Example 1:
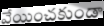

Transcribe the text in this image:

వేయించకుండా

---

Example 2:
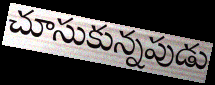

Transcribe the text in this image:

చూసుకున్నపుడు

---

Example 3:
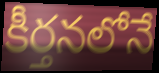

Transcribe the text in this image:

కీర్తనలోనే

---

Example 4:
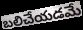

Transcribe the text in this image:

బలిచేయడమే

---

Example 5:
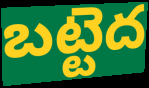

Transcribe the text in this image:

బట్టెద